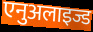
एनुअलाइज्ड